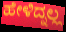
ಹೇಳಿದ್ನಲ್ಲ